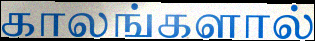
காலங்களால்